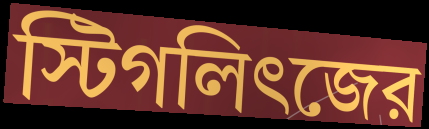
স্টিগলিৎজের